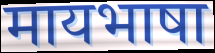
मायभाषा